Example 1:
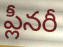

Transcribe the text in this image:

ప్లీనరీ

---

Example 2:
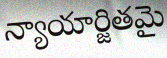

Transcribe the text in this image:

న్యాయార్జితమై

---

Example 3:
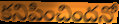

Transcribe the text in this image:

కనిపించిందనో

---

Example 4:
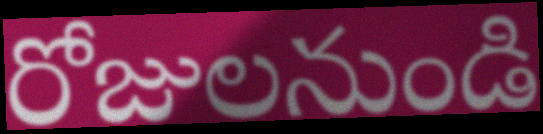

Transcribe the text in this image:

రోజులనుండి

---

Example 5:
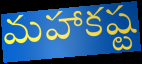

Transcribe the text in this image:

మహాకష్ట